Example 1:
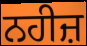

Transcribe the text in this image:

ਨਹੀਜ਼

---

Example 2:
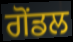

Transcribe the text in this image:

ਗੋਂਡਲ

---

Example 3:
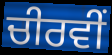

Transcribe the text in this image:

ਚੀਰਵੀਂ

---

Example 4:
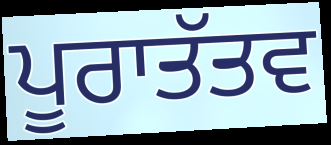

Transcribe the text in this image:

ਪੂਰਾਤੱਤਵ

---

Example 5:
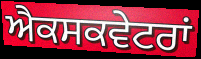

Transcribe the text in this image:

ਐਕਸਕਵੇਟਰਾਂ